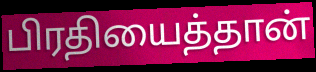
பிரதியைத்தான்